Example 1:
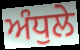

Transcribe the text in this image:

ਅੰਧੁਲੇ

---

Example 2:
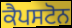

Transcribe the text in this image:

ਕੈਪਸਟੋਨ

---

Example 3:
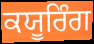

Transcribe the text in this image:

ਕਯੂਰਿੰਗ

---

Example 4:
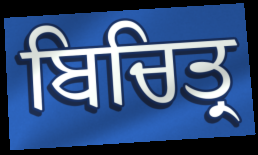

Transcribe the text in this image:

ਬਿਚਿਤ੍ਰ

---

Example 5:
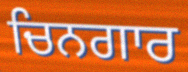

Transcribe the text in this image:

ਚਿਨਗਾਰ